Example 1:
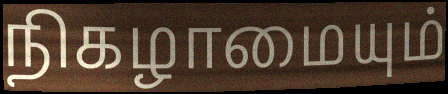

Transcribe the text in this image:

நிகழாமையும்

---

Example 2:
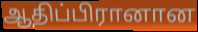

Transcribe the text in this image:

ஆதிப்பிரானான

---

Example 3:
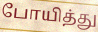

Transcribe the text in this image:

போயித்து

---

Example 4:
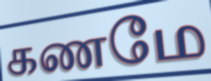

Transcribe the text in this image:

கணமே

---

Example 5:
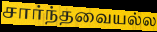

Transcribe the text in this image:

சார்ந்தவையல்ல